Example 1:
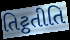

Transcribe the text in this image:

તિટ્ઠતીતિ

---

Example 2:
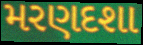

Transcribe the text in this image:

મરણદશા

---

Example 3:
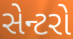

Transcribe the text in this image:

સેન્ટરો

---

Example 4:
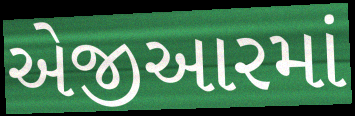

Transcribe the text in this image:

એજીઆરમાં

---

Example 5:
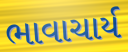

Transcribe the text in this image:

ભાવાચાર્ય